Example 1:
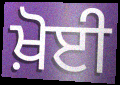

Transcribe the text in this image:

ਖ਼ੋਈ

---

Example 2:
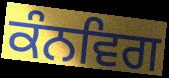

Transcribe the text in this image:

ਕੰਨਵਿਗ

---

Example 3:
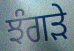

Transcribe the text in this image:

ਝੰਗੜੇ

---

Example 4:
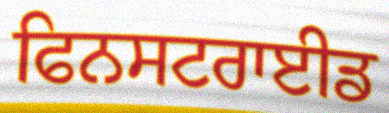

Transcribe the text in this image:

ਫਿਨਸਟਰਾਈਡ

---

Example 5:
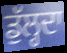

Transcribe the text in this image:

ਡੁੱਲ੍ਹਦਾ